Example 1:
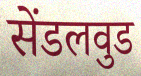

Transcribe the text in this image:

सेंडलवुड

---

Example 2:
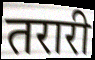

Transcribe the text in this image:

तरारी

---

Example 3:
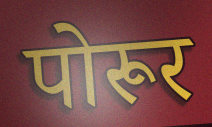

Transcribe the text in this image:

पोरूर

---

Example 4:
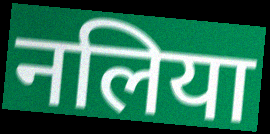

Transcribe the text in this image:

नलिया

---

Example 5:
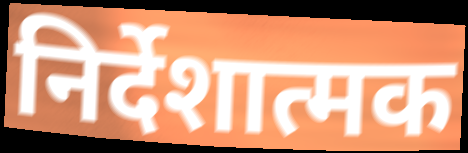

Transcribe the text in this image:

निर्देशात्मक